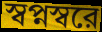
স্বপ্নস্বরে